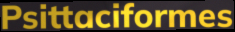
Psittaciformes